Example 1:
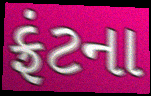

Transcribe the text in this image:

ફ્રંટના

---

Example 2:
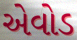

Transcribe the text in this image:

એવોડ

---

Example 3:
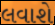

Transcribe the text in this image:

લવાશે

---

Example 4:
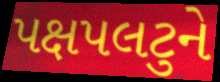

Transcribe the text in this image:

પક્ષપલટુને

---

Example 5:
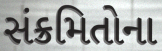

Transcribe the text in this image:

સંક્રમિતોના